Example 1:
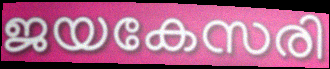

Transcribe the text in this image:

ജയകേസരി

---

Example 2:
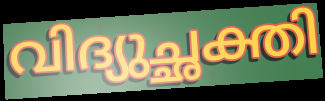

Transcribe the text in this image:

വിദ്യുച്ഛക്തി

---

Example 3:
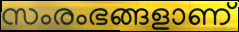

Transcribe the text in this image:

സംരംഭങ്ങളാണ്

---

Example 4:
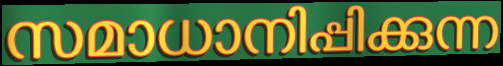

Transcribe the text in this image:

സമാധാനിപ്പിക്കുന്ന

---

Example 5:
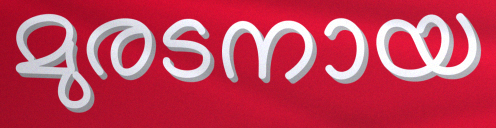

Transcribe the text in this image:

മുരടനായ